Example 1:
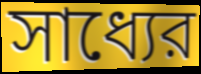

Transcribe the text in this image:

সাধ্যের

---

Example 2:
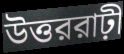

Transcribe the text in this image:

উত্তররাঢ়ী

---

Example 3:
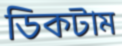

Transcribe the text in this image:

ডিকটাম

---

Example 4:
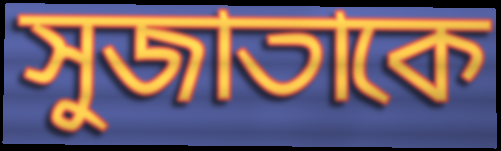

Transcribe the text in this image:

সুজাতাকে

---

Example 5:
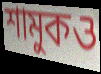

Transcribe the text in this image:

শামুকও